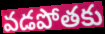
వడపోతకు